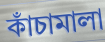
কাঁচামালা